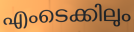
എംടെക്കിലും